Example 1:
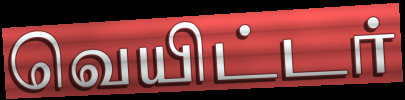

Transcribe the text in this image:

வெயிட்டர்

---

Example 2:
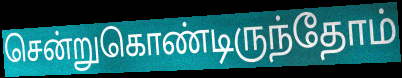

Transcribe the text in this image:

சென்றுகொண்டிருந்தோம்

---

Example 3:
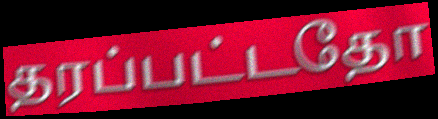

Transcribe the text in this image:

தரப்பட்டதோ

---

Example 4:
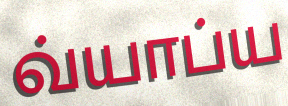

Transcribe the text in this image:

வ்யாப்ய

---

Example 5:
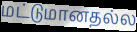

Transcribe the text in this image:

மட்டுமானதல்ல